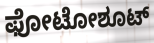
ಫೋಟೋಶೂಟ್